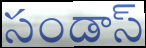
సండాస్